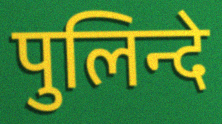
पुलिन्दे